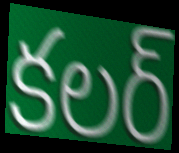
కలర్